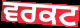
ਵਰਕਟ